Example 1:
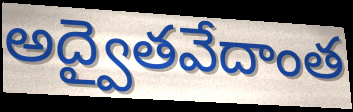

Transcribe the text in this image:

అద్వైతవేదాంత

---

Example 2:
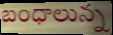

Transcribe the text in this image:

బంధాలున్న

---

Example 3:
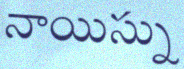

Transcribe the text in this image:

నాయిస్ను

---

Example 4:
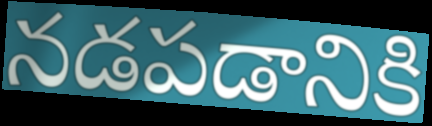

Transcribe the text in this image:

నడపడానికి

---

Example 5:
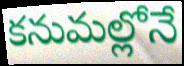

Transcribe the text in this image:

కనుమల్లోనే